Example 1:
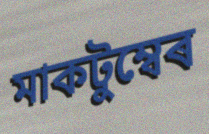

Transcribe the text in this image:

মাকটুম্বেৰ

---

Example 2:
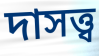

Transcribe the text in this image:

দাসত্ত্ব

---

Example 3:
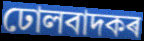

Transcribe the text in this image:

ঢোলবাদকৰ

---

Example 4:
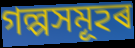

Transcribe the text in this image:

গল্পসমূহৰ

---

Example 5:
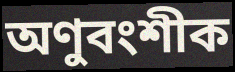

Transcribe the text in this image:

অণুবংশীক